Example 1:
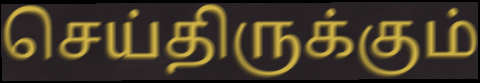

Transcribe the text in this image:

செய்திருக்கும்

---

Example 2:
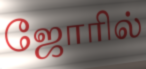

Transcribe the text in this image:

ஜோரில்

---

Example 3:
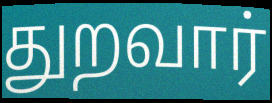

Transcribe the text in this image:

துறவார்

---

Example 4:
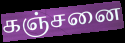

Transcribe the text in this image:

கஞ்சனை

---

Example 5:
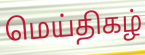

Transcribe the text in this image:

மெய்திகழ்